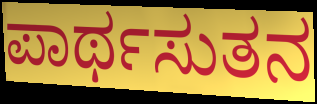
ಪಾರ್ಥಸುತನ